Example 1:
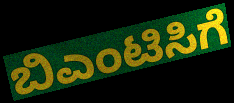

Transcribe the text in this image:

ಬಿಎಂಟಿಸಿಗೆ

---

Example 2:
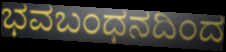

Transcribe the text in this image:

ಭವಬಂಧನದಿಂದ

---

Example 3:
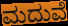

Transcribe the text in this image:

ಮದುವೆ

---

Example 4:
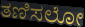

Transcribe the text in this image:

ತಣಿಸಲೋ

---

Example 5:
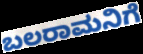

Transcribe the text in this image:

ಬಲರಾಮನಿಗೆ